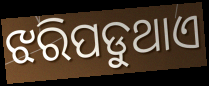
ଝରିପଡୁଥାଏ